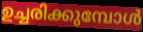
ഉച്ചരിക്കുമ്പോൾ